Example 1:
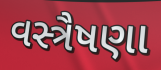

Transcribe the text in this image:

વસ્ત્રૈષણા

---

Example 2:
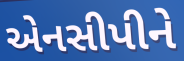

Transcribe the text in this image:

એનસીપીને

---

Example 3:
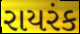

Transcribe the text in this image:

રાયરંક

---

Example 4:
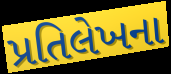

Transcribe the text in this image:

પ્રતિલેખના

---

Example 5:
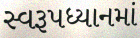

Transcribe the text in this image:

સ્વરૂપધ્યાનમાં